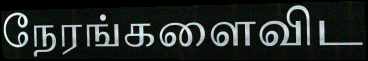
நேரங்களைவிட